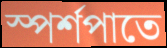
স্পর্শপাতে